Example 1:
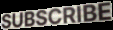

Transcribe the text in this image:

SUBSCRIBE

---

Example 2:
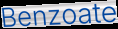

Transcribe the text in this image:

Benzoate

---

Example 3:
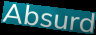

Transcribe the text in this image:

Absurd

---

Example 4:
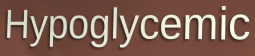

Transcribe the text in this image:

Hypoglycemic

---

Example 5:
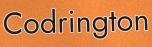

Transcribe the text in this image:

Codrington